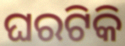
ଘରଟିକି